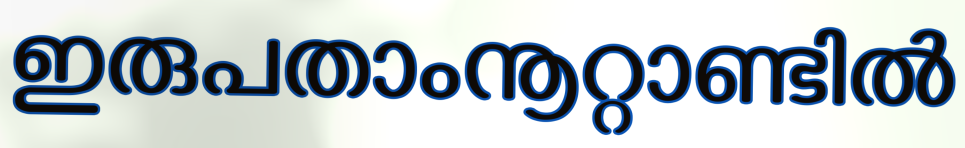
ഇരുപതാംനൂറ്റാണ്ടിൽ